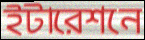
ইটারেশনে